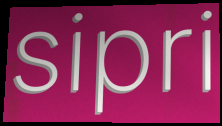
sipri